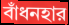
বাঁধনহার